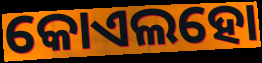
କୋଏଲହୋ